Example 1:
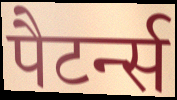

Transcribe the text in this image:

पैटर्न्स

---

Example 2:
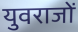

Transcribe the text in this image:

युवराजों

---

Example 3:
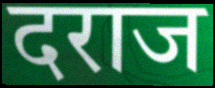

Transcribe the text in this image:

दराज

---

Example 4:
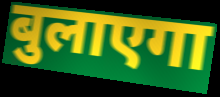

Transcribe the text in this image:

बुलाएगा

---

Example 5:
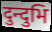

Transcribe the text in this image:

दुन्दुभि